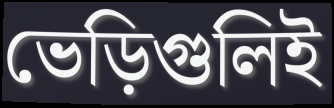
ভেড়িগুলিই